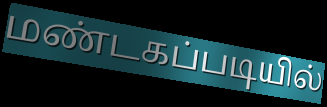
மண்டகப்படியில்